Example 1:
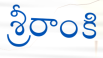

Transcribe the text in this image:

శ్రీరాంకి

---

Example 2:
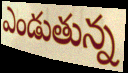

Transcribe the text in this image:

ఎండుతున్న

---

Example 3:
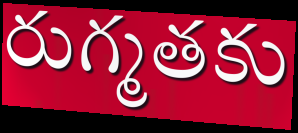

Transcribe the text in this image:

రుగ్మతకు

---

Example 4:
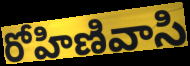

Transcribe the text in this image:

రోహిణివాసి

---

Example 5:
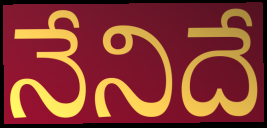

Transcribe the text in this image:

నేనిదే